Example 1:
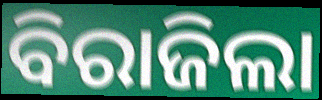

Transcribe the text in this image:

ବିରାଜିଲା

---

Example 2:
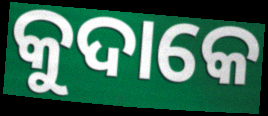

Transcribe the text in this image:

କୁଦାକେ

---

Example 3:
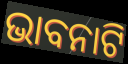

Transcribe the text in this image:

ଭାବନାଟି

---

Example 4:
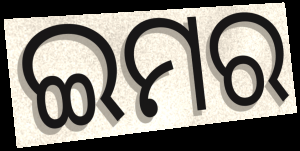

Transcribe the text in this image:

ଇମର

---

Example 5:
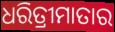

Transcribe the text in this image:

ଧରିତ୍ରୀମାତାର